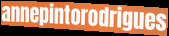
annepintorodrigues